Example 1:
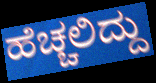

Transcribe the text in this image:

ಹೆಚ್ಚಲಿದ್ದು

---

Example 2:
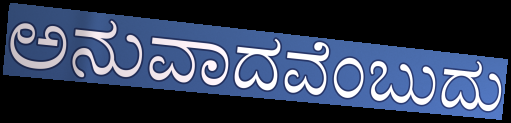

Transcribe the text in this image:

ಅನುವಾದವೆಂಬುದು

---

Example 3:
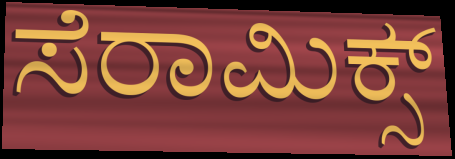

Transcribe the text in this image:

ಸೆರಾಮಿಕ್ಸ್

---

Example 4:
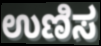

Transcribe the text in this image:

ಉಣಿಸ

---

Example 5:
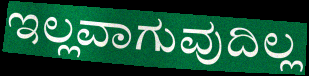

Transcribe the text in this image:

ಇಲ್ಲವಾಗುವುದಿಲ್ಲ